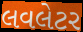
લવલેટર